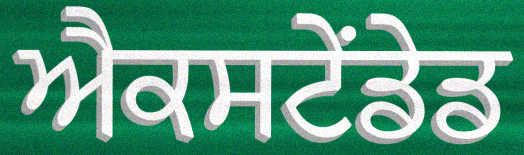
ਐਕਸਟੇਂਡੇਡ